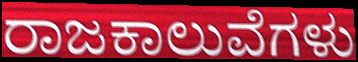
ರಾಜಕಾಲುವೆಗಳು